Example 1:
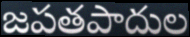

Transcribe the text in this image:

జపతపాదుల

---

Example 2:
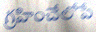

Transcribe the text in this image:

గ్రహించేలోపే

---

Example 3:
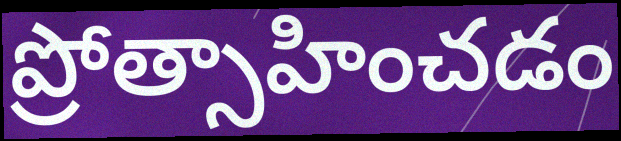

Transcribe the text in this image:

ప్రోత్సాహించడం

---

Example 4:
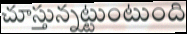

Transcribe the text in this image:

చూస్తున్నట్టుంటుంది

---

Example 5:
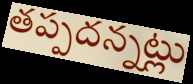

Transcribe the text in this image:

తప్పదన్నట్లు